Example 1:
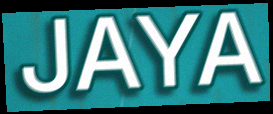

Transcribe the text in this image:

JAYA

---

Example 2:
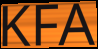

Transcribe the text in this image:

KFA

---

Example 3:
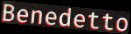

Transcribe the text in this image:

Benedetto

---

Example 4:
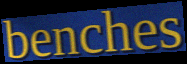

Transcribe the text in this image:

benches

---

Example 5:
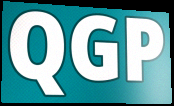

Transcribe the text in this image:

QGP